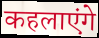
कहलाएंगे